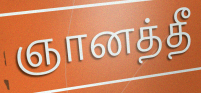
ஞானத்தீ